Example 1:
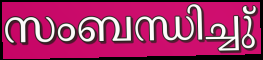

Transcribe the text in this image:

സംബന്ധിച്ചു്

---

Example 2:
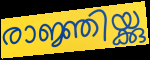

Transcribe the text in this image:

രാജ്ഞിയ്ക്കു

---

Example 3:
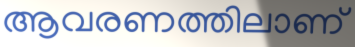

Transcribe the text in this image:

ആവരണത്തിലാണ്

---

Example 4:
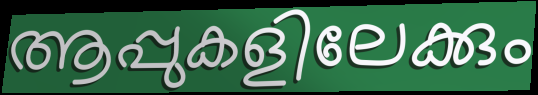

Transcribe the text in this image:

ആപ്പുകളിലേക്കും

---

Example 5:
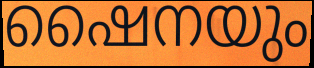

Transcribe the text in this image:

ഷൈനയും